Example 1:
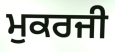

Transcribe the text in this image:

ਮੁਕਰਜੀ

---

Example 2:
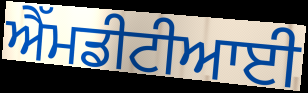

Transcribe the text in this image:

ਐੱਮਡੀਟੀਆਈ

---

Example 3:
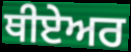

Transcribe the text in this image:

ਥੀਏਅਰ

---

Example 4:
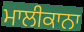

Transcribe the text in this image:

ਮਾਲੀਕਾਨਾ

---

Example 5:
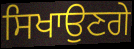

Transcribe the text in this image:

ਸਿਖਾਉਣਗੇ